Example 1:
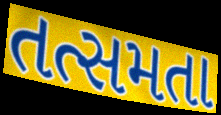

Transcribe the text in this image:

તત્સમતા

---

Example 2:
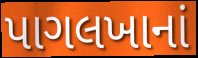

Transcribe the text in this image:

પાગલખાનાં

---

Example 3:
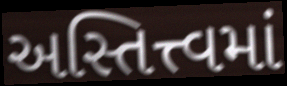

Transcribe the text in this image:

અસ્તિત્ત્વમાં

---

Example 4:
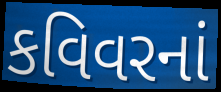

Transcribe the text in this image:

કવિવરનાં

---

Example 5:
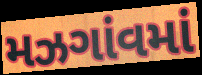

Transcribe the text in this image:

મઝગાંવમાં